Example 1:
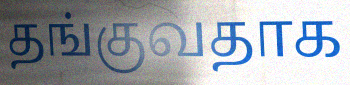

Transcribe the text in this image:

தங்குவதாக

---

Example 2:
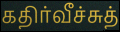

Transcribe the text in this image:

கதிர்வீச்சுத்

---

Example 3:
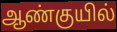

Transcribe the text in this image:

ஆண்குயில்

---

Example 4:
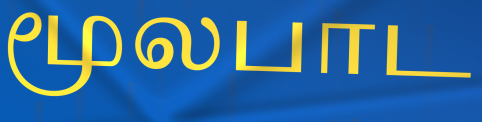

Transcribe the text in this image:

மூலபாட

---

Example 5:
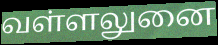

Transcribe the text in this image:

வள்ளலுனை